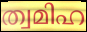
ത്വമിഹ